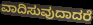
ವಾದಿಸುವುದಾದರೆ